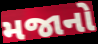
મજાનો